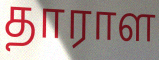
தாராள